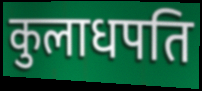
कुलाधपति